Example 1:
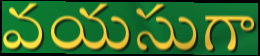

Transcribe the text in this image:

వయసుగా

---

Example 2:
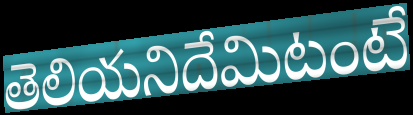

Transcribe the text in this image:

తెలియనిదేమిటంటే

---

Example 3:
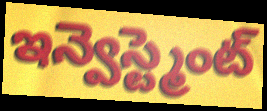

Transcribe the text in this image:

ఇన్వెస్ట్మెంట్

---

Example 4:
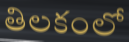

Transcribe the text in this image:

తిలకంలో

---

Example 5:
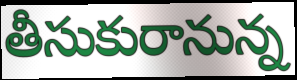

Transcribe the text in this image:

తీసుకురానున్న